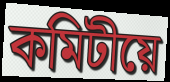
কমিটীয়ে